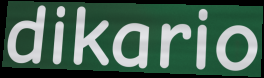
dikario